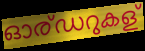
ഓര്ഡറുകള്